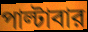
পাল্টাবার